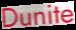
Dunite